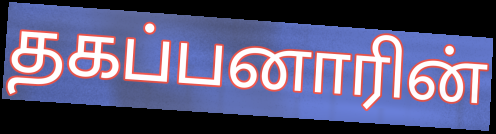
தகப்பனாரின்